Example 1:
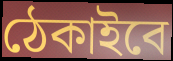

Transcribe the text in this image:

ঠেকাইবে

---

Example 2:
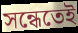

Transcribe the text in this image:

সন্ধেতেই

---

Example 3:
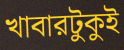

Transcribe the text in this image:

খাবারটুকুই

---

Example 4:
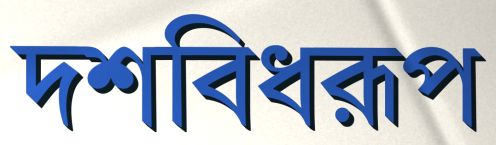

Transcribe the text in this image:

দশবিধরূপ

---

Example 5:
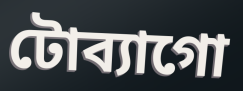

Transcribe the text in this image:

টোব্যাগো